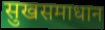
सुखसमाधान